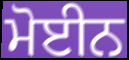
ਮੋਈਨ